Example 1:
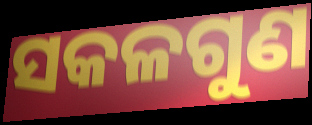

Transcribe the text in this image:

ସକଳଗୁଣ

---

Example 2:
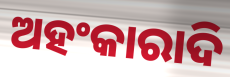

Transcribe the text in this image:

ଅହଂକାରାଦି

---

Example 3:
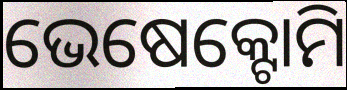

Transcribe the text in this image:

ଭେଷେକ୍ଟୋମି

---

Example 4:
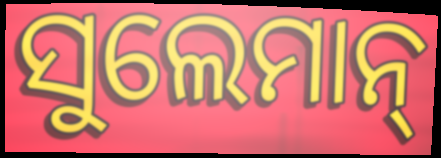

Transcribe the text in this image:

ସୁଲେମାନ୍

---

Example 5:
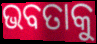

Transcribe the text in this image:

ଭବତାକୁ